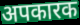
अपकारक